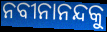
ନବୀନାନନ୍ଦକୁ